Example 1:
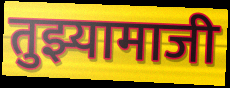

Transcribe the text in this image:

तुझ्यामाजी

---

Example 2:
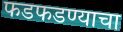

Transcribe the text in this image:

फडफडण्याचा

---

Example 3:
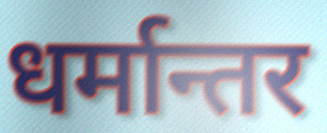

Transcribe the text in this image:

धर्मान्तर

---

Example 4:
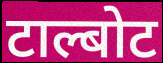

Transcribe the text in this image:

टाल्बोट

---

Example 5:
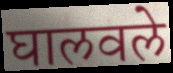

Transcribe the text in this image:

घालवले